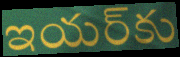
ఇయర్‌కు